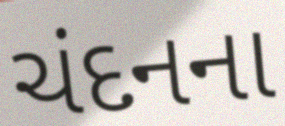
ચંદનના